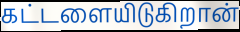
கட்டளையிடுகிறான்